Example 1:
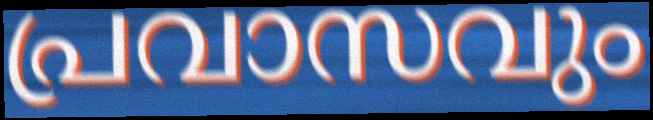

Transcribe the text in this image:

പ്രവാസവും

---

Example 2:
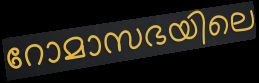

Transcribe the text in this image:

റോമാസഭയിലെ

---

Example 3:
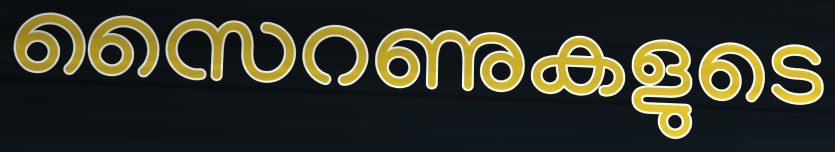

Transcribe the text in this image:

സൈറണുകളുടെ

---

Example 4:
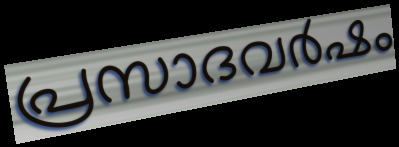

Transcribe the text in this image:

പ്രസാദവർഷം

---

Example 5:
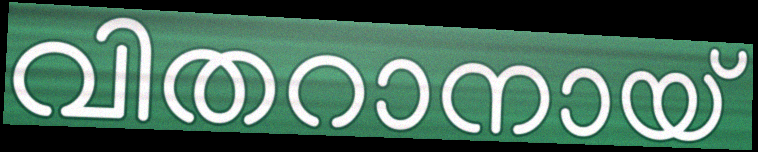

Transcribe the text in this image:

വിതറാനായ്